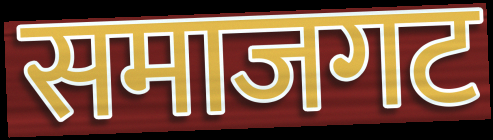
समाजगट